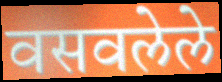
वसवलेले